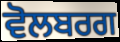
ਵੋਲਬਰਗ